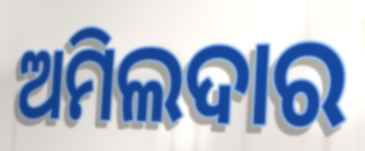
ଅମିଲଦାର